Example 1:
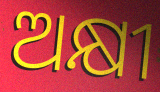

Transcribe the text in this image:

ଅକ୍ଷୀ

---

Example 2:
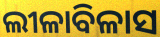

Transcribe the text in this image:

ଲୀଳାବିଳାସ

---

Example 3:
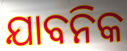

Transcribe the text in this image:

ଯାବନିକ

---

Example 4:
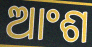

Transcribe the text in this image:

ଆଂଶ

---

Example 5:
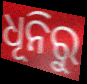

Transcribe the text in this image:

ଧୂନିରୁ